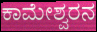
ಕಾಮೇಶ್ವರನ